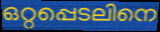
ഒറ്റപ്പെടലിനെ